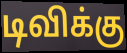
டிவிக்கு